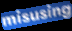
misusing